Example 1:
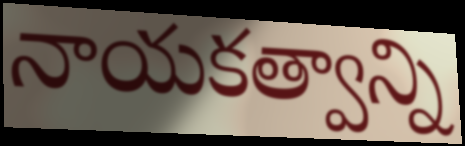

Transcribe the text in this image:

నాయకత్వాన్ని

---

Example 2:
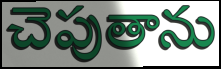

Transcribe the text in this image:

చెపుతాను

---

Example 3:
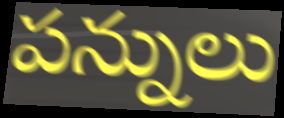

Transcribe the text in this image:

పన్నులు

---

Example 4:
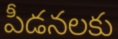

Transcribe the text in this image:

పీడనలకు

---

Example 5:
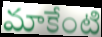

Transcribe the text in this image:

మాకేంటి